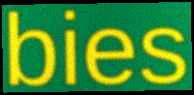
bies